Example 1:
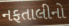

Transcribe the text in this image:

નફતાલીનો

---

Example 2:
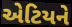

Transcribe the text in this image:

એટિયને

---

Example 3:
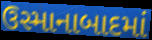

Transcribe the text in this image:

ઉસ્માનાબાદમાં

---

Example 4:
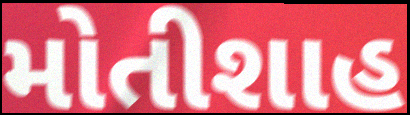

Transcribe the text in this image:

મોતીશાહ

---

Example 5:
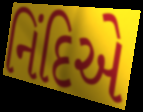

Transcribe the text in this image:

નિંદિએ